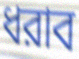
ধরাব